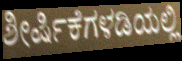
ಶೀರ್ಷಿಕೆಗಳಡಿಯಲ್ಲಿ